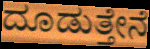
ದೂಡುತ್ತೇನೆ